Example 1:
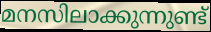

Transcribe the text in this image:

മനസിലാക്കുന്നുണ്ട്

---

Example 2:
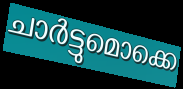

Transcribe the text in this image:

ചാർട്ടുമൊക്കെ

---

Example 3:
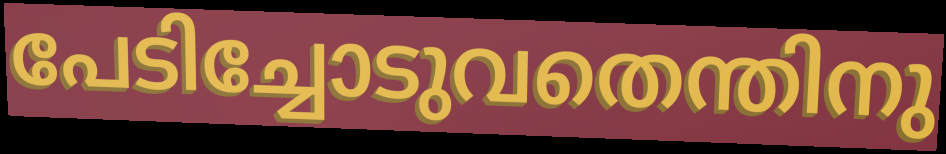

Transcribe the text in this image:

പേടിച്ചോടുവതെന്തിനു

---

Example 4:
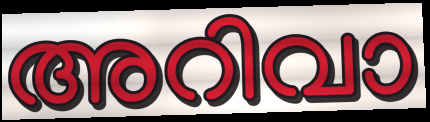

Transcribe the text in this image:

അറിവാ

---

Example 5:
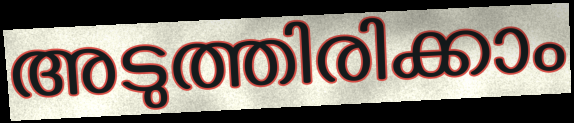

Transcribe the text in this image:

അടുത്തിരിക്കാം